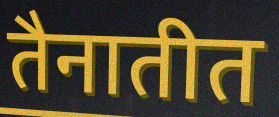
तैनातीत